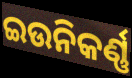
ଇଉନିକର୍ଣ୍ଣ